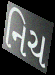
નિચ